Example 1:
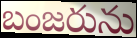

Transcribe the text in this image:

బంజరును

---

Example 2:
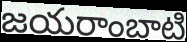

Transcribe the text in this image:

జయరాంబాటి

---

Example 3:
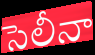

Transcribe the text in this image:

సెలీనా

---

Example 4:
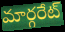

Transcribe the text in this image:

మార్గరేట్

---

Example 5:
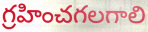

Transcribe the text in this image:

గ్రహించగలగాలి